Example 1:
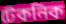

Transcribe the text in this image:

টেকনিক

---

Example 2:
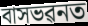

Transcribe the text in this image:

বাসভৱনত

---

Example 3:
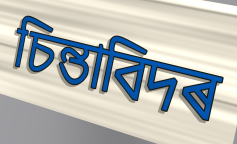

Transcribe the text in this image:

চিন্তাবিদৰ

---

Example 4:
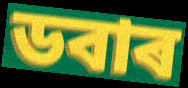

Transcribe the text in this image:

ডবাৰ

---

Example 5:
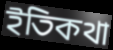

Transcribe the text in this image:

ইতিকথা